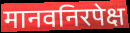
मानवनिरपेक्ष